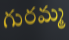
గురమ్మ